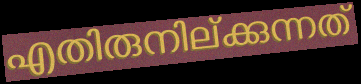
എതിരുനില്ക്കുന്നത്